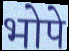
भोपे